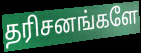
தரிசனங்களே